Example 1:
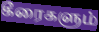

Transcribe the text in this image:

கீரைகளும்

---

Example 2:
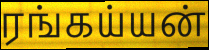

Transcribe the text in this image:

ரங்கய்யன்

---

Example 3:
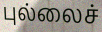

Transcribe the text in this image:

புல்லைச்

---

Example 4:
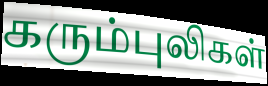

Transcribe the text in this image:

கரும்புலிகள்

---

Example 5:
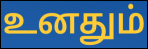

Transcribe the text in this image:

உனதும்